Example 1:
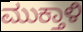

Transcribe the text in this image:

ಮುಕ್ತಾಳಿ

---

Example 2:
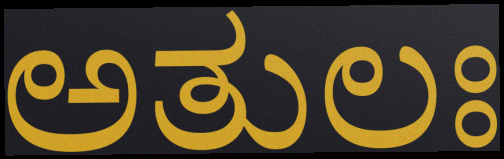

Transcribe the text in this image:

ಅತುಲಃ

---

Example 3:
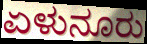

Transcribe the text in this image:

ಏಳುನೂರು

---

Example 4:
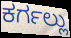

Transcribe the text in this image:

ಕರ್ಗಲ್ಲು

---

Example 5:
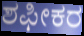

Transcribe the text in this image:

ಶಫೀಕರ